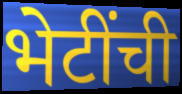
भेटींची